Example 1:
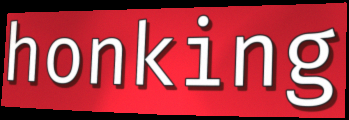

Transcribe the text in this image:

honking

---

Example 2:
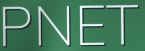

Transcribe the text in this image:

PNET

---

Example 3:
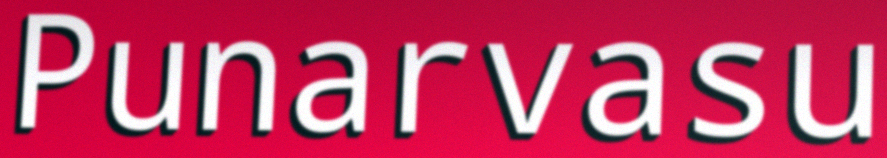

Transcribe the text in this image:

Punarvasu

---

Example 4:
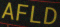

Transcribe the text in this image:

AFLD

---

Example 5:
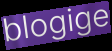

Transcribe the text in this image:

blogige